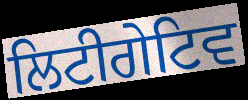
ਲਿਟੀਗੇਟਿਵ